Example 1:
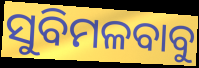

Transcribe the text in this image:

ସୁବିମଳବାବୁ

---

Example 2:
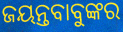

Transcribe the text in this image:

ଜୟନ୍ତବାବୁଙ୍କର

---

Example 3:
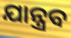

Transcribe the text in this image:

ଯାନ୍ତ୍ରବ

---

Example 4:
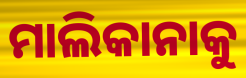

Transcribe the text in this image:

ମାଲିକାନାକୁ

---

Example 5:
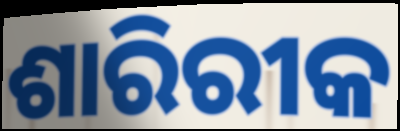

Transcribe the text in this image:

ଶାରିରୀକ